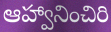
ఆహ్వానించిరి